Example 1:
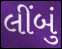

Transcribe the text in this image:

લીંબું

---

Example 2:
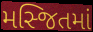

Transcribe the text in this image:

મસ્જિતમાં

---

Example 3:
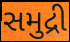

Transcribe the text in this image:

સમુદ્રી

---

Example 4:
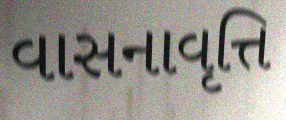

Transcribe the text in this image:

વાસનાવૃત્તિ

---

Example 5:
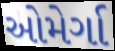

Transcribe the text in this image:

ઓમેર્ગા